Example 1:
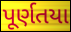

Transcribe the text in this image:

પૂર્ણતયા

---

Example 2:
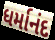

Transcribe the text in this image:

ધર્માનંદ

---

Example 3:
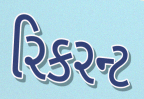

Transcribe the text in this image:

રિકરન્ટ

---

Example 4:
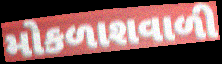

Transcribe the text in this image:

મોકળાશવાળી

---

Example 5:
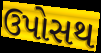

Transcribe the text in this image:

ઉપોસથ